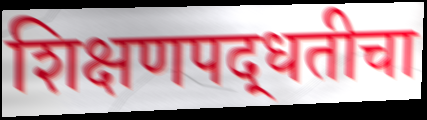
शिक्षणपद्धतीचा